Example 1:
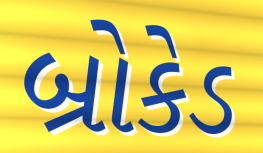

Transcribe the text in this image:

બ્રોકેડ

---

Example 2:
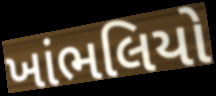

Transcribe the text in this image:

ખાંભલિયો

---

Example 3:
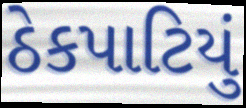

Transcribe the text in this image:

ઠેકપાટિયું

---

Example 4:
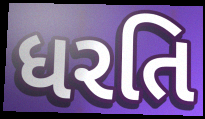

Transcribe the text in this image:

ધરતિ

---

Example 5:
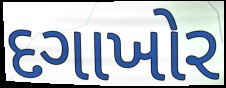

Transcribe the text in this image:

દગાખોર